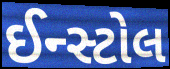
ઈન્સ્ટોલ